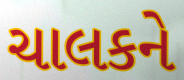
ચાલકને